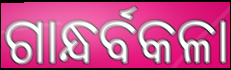
ଗାନ୍ଧର୍ବକଳା